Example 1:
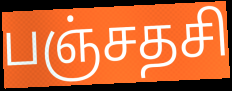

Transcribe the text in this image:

பஞ்சதசி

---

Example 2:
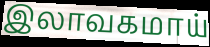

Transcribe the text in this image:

இலாவகமாய்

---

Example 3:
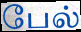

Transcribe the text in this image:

பேல்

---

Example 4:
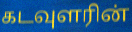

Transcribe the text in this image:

கடவுளரின்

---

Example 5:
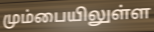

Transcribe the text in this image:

மும்பையிலுள்ள